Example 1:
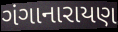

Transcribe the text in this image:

ગંગાનારાયણ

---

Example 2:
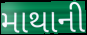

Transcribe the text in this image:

માથાની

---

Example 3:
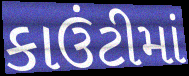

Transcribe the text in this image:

કાઉંટીમાં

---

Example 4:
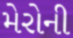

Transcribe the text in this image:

મેરોની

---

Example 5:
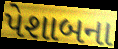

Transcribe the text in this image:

પેશાબના